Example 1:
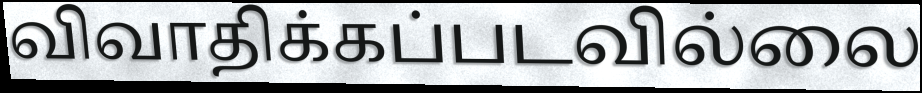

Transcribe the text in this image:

விவாதிக்கப்படவில்லை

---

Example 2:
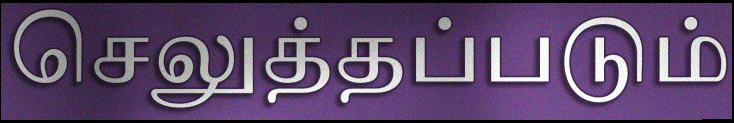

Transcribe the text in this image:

செலுத்தப்படும்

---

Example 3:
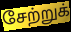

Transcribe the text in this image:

சேற்றுக்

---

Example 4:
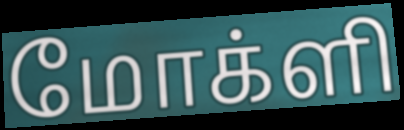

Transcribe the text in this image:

மோக்ளி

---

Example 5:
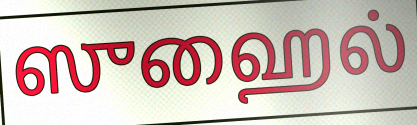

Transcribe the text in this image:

ஸுஹைல்